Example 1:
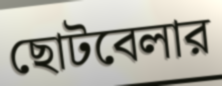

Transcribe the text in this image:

ছোটবেলার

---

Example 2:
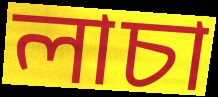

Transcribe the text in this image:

লাচা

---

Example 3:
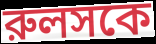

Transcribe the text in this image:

রুলসকে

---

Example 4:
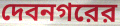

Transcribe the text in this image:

দেবনগরের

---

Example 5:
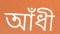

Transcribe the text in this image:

আঁধী